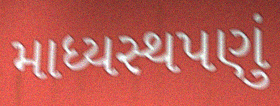
માધ્યસ્થપણું